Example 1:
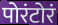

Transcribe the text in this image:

पोरंटोरं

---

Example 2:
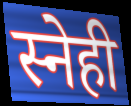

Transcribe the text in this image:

स्नेही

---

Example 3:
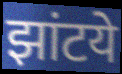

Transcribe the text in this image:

झांटये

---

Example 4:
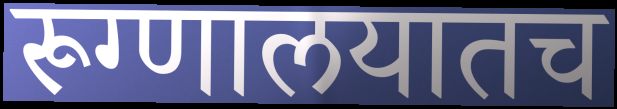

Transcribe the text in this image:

रूग्णालयातच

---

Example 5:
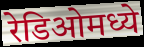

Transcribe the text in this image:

रेडिओमध्ये